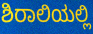
ಶಿರಾಲಿಯಲ್ಲಿ